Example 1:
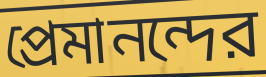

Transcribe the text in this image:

প্রেমানন্দের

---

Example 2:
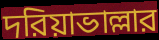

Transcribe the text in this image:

দরিয়াভাল্লার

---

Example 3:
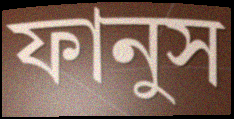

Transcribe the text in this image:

ফানুস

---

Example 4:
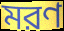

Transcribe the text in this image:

মরণ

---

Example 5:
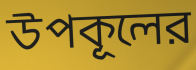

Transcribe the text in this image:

উপকূলের